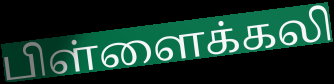
பிள்ளைக்கலி